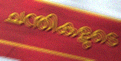
ചന്തികളുടെ